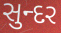
સુન્દર